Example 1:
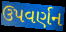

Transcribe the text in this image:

ઉપવર્ણન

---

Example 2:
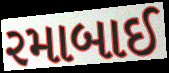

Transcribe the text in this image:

રમાબાઈ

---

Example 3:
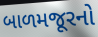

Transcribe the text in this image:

બાળમજૂરનો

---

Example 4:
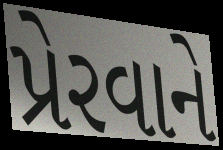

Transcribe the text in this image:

પ્રેરવાને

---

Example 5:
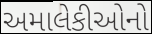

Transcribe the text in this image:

અમાલેકીઓનો